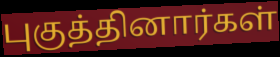
புகுத்தினார்கள்